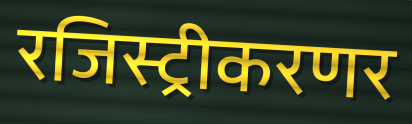
रजिस्ट्रीकरणर